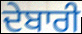
ਦੇਬਾਰੀ